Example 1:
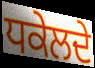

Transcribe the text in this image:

ਧਕੇਲਦੇ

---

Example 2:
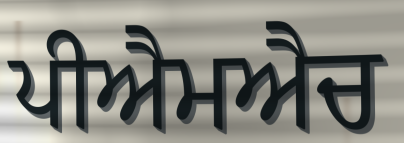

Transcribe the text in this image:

ਪੀਐਮਐਚ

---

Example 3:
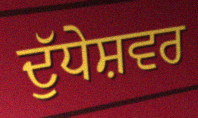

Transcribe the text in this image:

ਦੁੱਧੇਸ਼ਵਰ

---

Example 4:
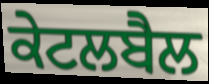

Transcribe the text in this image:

ਕੇਟਲਬੈਲ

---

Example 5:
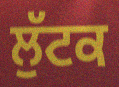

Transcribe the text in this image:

ਲੁੱਟਕ